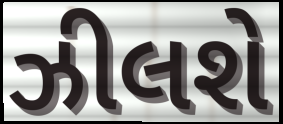
ઝીલશે